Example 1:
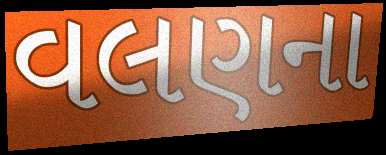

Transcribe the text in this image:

વલણના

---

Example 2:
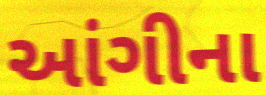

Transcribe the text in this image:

આંગીના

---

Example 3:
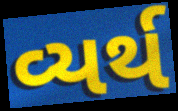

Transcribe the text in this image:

વ્યર્થ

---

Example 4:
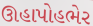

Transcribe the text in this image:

ઊહાપોહભેર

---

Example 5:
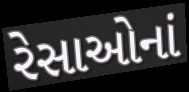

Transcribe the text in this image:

રેસાઓનાં